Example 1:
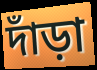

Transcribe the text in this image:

দাঁড়া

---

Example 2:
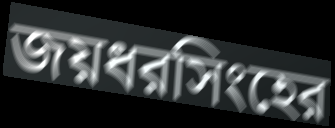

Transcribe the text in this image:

জয়ধরসিংহের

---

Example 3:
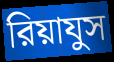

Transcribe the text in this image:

রিয়াযুস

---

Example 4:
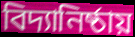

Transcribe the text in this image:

বিদ্যানিষ্ঠায়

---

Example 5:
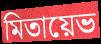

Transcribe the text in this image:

মিতায়েভ